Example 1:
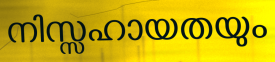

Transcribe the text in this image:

നിസ്സഹായതയും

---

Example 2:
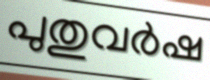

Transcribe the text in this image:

പുതുവർഷ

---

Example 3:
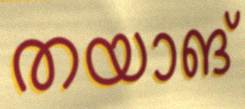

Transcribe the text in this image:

തയാങ്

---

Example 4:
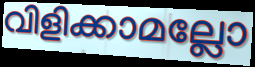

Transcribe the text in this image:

വിളിക്കാമല്ലോ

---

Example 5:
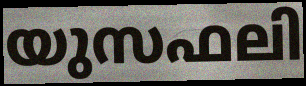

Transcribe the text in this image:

യുസഫലി